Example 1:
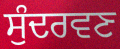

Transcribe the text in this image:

ਸੁੰਦਰਵਣ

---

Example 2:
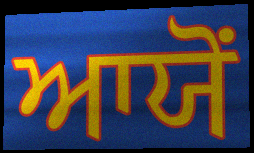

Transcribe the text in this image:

ਆਯੋਂ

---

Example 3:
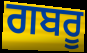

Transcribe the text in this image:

ਗਬਰੂ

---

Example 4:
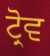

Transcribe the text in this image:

ਟ੍ਰੋਵ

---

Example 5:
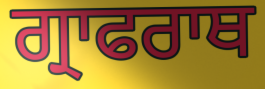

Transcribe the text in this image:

ਗ੍ਰਾਫਰਾਥ